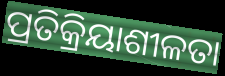
ପ୍ରତିକ୍ରିୟାଶୀଳତା